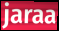
jaraa